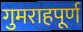
गुमराहपूर्ण